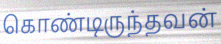
கொண்டிருந்தவன்